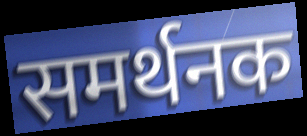
समर्थनक